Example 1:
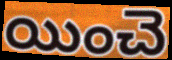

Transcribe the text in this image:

యించె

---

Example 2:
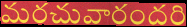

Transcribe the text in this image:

మరచువారందరి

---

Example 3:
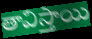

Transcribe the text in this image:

తావిస్తాయి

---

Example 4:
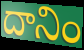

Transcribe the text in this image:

దానిం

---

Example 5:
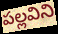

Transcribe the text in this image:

పల్లవిని